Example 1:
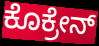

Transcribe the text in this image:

ಕೊಕ್ರೇನ್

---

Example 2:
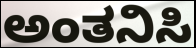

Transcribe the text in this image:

ಅಂತನಿಸಿ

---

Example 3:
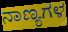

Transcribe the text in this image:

ನಾಣ್ಯಗಳ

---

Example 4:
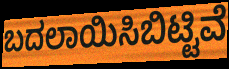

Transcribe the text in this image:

ಬದಲಾಯಿಸಿಬಿಟ್ಟಿವೆ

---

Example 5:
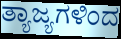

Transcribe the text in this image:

ತ್ಯಾಜ್ಯಗಳಿಂದ